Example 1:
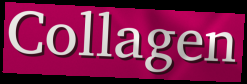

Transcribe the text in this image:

Collagen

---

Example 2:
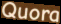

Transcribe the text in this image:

Quora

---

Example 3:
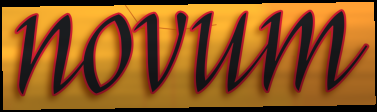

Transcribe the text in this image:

novum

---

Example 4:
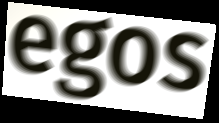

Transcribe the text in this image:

egos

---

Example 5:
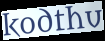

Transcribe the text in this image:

kodthu